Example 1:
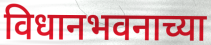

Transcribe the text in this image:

विधानभवनाच्या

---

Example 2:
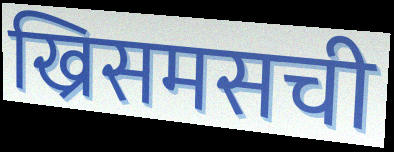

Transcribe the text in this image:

ख्रिसमसची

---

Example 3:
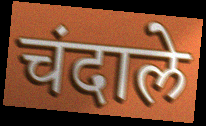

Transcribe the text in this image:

चंदाले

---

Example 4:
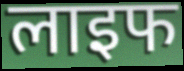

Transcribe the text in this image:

लाइफ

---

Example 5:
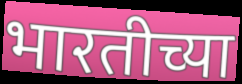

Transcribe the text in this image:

भारतीच्‍या